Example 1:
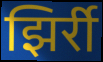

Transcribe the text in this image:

झिर्री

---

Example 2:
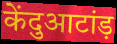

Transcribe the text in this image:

केंदुआटांड़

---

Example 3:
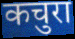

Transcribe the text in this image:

कचुरा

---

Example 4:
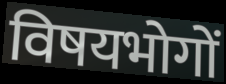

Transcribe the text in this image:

विषयभोगों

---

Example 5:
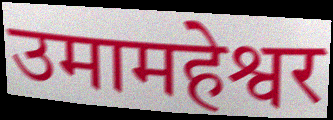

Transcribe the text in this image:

उमामहेश्वर